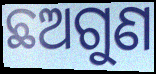
ଛଅଗୁଣ